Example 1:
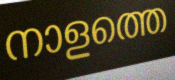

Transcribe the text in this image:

നാളത്തെ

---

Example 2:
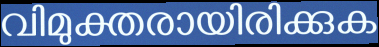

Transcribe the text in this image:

വിമുക്തരായിരിക്കുക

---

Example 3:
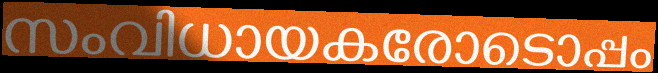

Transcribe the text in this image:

സംവിധായകരോടൊപ്പം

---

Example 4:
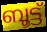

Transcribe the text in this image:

ബൂട്ട്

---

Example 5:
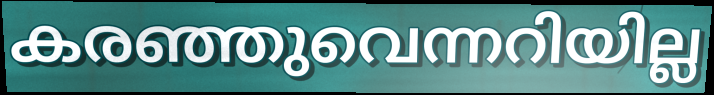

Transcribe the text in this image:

കരഞ്ഞുവെന്നറിയില്ല